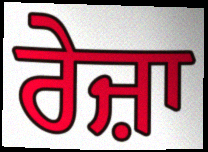
ਰੇਜ਼ਾ